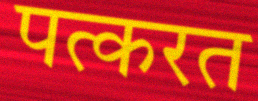
पत्करत